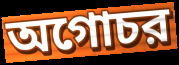
অগোচর